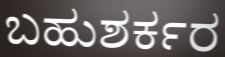
ಬಹುಶರ್ಕರ